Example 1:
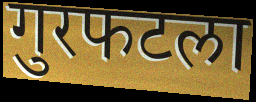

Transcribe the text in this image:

गुरफटला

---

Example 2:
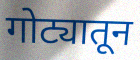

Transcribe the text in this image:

गोट्यातून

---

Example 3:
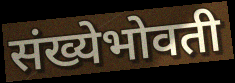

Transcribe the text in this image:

संख्येभोवती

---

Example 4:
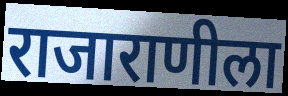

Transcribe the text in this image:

राजाराणीला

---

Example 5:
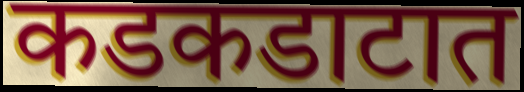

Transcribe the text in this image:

कडकडाटात